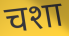
चशा